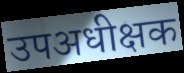
उपअधीक्षक